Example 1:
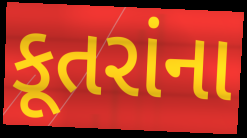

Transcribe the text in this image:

કૂતરાંના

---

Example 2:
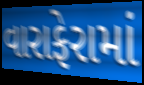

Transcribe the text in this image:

વારાફેરામાં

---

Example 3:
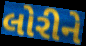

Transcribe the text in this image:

લોરીને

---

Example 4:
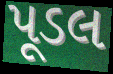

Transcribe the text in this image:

પૂડલ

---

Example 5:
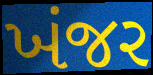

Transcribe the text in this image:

ખંજર